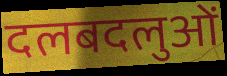
दलबदलुओं